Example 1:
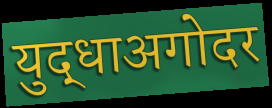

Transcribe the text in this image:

युद्धाअगोदर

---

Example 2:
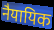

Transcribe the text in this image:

नैयायिक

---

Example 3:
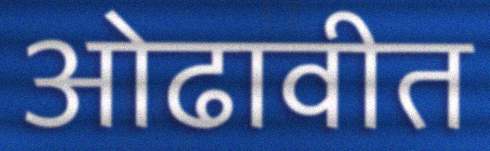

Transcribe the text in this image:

ओढावीत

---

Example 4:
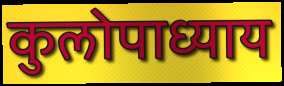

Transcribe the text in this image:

कुलोपाध्याय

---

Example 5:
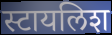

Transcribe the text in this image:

स्टायलिश